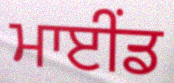
ਮਾਈਂਡ